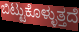
ಬಿಟ್ಟುಕೊಳ್ಳುತ್ತದೆ